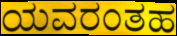
ಯವರಂತಹ